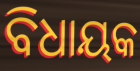
ବିଧାୟକ